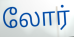
லோர்